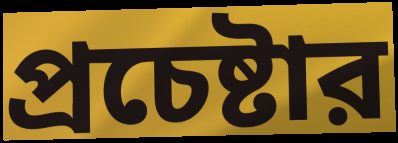
প্রচেষ্টার